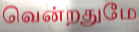
வென்றதுமே